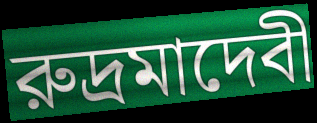
রুদ্রমাদেবী